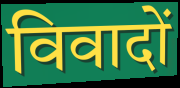
विवादों